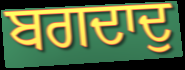
ਬਗਦਾਦੁ